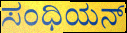
ಸಂಧಿಯನ್